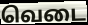
வெடை